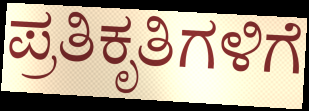
ಪ್ರತಿಕೃತಿಗಳಿಗೆ